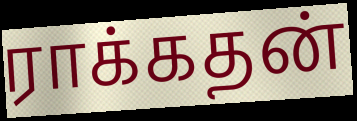
ராக்கதன்